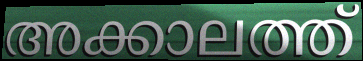
അക്കാലത്ത്